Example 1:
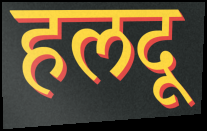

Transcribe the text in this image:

हलदू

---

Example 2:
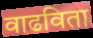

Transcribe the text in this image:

वाढविता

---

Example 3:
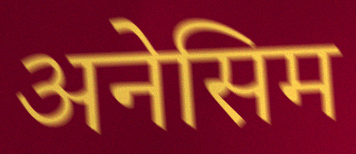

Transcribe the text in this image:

अनेसिम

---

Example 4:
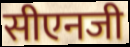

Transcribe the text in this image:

सीएनजी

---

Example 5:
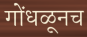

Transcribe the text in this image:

गोंधळूनच